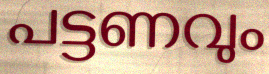
പട്ടണവും